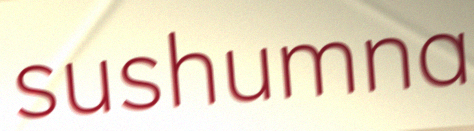
sushumna